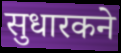
सुधारकने